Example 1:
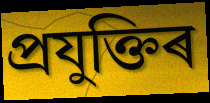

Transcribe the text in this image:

প্ৰযুক্তিৰ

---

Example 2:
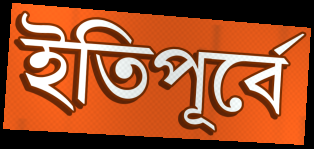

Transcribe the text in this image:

ইতিপূৰ্বে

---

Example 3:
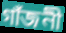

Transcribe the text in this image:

গাঁজনী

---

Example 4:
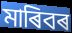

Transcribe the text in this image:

মাৰিবৰ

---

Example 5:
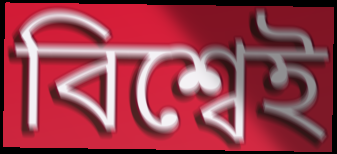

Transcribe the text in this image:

বিশ্বেই